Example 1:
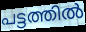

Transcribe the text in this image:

പട്ടത്തിൽ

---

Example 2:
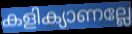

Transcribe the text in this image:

കളിക്യാണല്ലേ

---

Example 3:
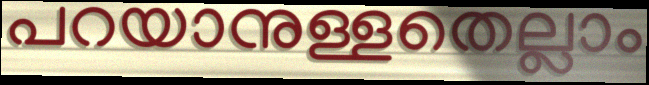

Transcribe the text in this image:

പറയാനുള്ളതെല്ലാം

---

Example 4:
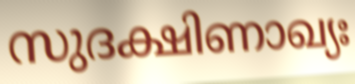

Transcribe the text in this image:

സുദക്ഷിണാഖ്യഃ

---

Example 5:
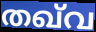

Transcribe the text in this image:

തഖ്‌വ